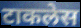
टाकलेस